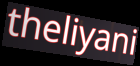
theliyani